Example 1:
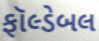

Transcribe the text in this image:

ફૉલ્ડેબલ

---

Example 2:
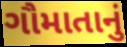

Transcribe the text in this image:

ગૌમાતાનું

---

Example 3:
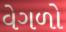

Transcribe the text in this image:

વેગળો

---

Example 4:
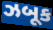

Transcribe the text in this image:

ઝબૂક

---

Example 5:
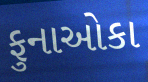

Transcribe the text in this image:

ફુનાઓકા